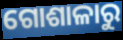
ଗୋଶାଳାରୁ